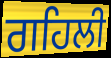
ਗਹਿਲੀ